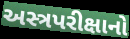
અસ્ત્રપરીક્ષાનો